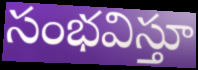
సంభవిస్తూ